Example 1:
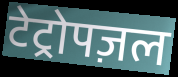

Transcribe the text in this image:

टेट्रोपज़ल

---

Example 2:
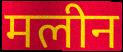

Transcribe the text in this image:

मलीन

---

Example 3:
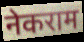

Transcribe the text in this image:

नेकराम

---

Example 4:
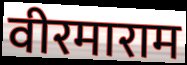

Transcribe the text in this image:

वीरमाराम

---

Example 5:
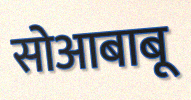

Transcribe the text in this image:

सोआबाबू